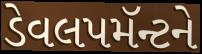
ડેવલપમૅન્ટને